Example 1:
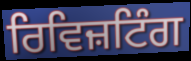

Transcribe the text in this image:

ਰਿਵਿਜ਼ਟਿੰਗ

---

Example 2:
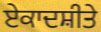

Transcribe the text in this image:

ਏਕਾਦਸ਼ੀਤੇ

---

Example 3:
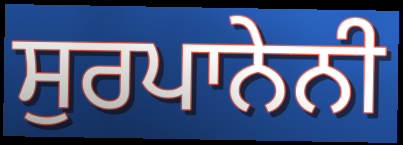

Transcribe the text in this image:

ਸੁਰਪਾਨੇਨੀ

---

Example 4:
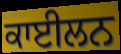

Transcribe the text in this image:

ਕਾਈਲਨ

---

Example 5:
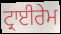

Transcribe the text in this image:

ਟ੍ਰਾਈਰੇਮ